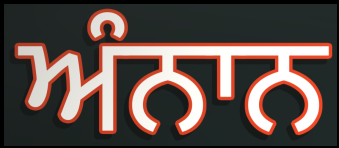
ਅੰਨਾਨ